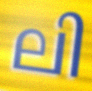
ലി